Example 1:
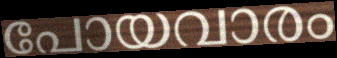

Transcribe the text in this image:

പോയവാരം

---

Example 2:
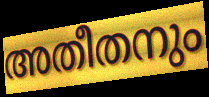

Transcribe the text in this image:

അതീതനും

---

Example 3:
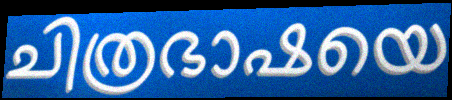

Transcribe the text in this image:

ചിത്രഭാഷയെ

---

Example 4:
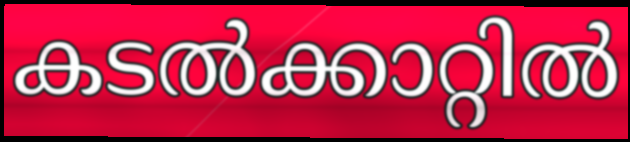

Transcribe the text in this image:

കടൽക്കാറ്റിൽ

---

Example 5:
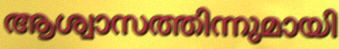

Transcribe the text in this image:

ആശ്വാസത്തിന്നുമായി